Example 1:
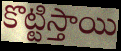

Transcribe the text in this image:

కొట్టిస్తాయి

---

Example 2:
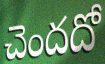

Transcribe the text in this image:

చెందదో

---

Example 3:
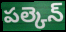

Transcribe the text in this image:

పల్కెన్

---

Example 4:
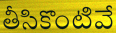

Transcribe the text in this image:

తీసికొంటివే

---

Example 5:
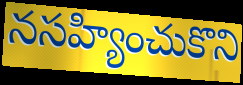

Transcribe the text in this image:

నసహ్యించుకొని